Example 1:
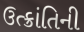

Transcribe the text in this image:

ઉત્ક્રાંતિની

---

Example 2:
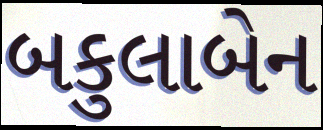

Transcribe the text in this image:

બકુલાબેન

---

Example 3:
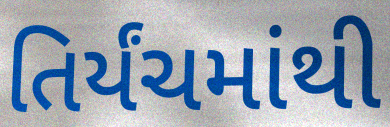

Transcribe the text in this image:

તિર્યંચમાંથી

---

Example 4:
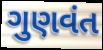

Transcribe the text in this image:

ગુણવંત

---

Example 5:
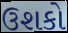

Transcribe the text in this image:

ઉશકો